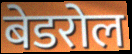
बेडरोल